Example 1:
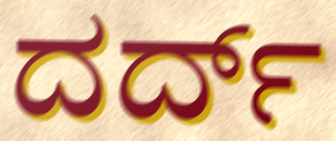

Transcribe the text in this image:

ದರ್ದ್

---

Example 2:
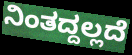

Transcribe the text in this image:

ನಿಂತದ್ದಲ್ಲದೆ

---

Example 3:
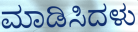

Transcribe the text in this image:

ಮಾಡಿಸಿದಳು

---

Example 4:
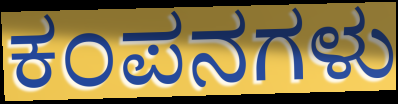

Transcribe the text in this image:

ಕಂಪನಗಳು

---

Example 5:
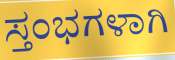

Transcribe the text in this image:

ಸ್ತಂಭಗಳಾಗಿ